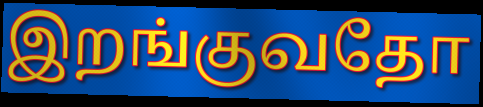
இறங்குவதோ